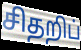
சிதறிப்